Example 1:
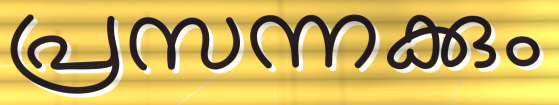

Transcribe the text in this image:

പ്രസന്നക്കും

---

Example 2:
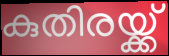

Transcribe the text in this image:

കുതിരയ്ക്ക്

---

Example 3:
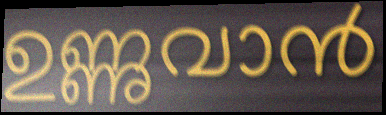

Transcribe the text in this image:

ഉണ്ണുവാൻ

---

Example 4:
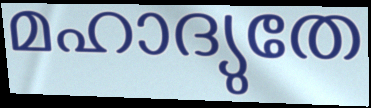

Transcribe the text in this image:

മഹാദ്യുതേ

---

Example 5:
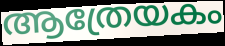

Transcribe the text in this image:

ആത്രേയകം